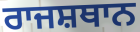
ਰਾਜਸ਼ਥਾਨ